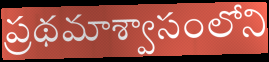
ప్రథమాశ్వాసంలోని